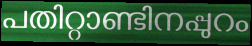
പതിറ്റാണ്ടിനപ്പുറം